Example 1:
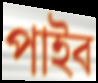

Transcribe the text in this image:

পাইব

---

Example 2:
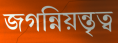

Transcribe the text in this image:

জগন্নিয়ন্তৃত্ব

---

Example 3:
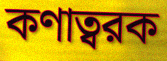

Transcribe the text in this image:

কণাত্বরক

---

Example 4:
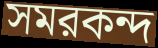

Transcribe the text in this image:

সমরকন্দ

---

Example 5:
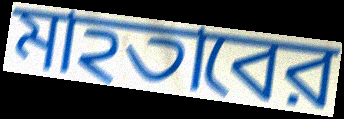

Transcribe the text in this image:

মাহতাবের